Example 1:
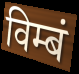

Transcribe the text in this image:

विम्बं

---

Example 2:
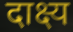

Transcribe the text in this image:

दाक्ष्य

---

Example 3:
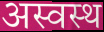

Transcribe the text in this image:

अस्वस्थ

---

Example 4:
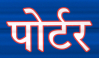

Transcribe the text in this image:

पोर्टर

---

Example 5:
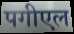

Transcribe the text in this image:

पगीएल